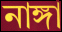
নাঙ্গা